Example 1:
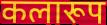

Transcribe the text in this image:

कलारूप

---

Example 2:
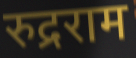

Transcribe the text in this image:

रुद्रराम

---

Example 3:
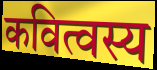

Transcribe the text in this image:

कवित्वस्य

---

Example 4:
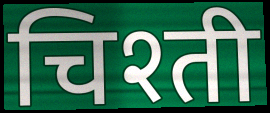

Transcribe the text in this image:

चिश्ती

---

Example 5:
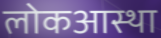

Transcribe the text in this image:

लोकआस्था